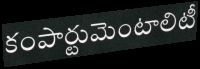
కంపార్టుమెంటాలిటీ